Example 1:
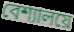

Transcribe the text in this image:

বেশ্যালয়ে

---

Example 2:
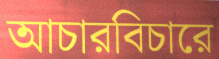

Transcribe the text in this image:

আচারবিচারে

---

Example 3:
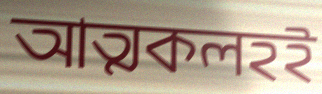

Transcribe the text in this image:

আত্মকলহই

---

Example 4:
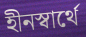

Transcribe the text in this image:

হীনস্বার্থে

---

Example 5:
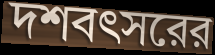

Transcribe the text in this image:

দশবৎসরের